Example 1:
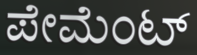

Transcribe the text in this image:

ಪೇಮೆಂಟ್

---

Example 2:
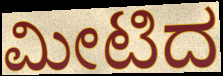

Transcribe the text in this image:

ಮೀಟಿದ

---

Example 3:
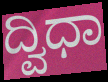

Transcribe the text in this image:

ದ್ವಿಧಾ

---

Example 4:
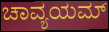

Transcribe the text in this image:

ಚಾವ್ಯಯಮ್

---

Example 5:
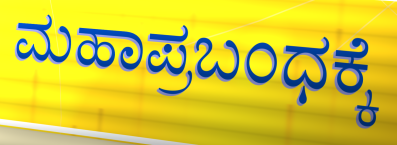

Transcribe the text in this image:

ಮಹಾಪ್ರಬಂಧಕ್ಕೆ